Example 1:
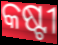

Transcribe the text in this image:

କଷ୍ଟୀ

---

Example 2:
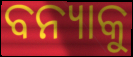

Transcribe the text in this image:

ବନ୍ୟାକୁ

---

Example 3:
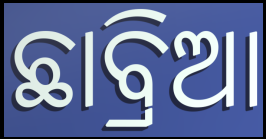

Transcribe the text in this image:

ଛାବ୍ରିଆ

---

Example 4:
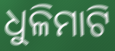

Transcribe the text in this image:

ଧୁଳିମାଟି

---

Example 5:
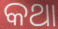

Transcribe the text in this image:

କଥା